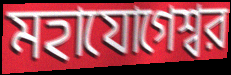
মহাযোগেশ্বর